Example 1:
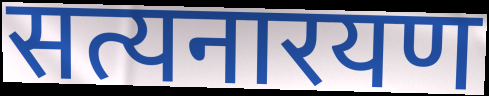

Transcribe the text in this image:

सत्यनारयण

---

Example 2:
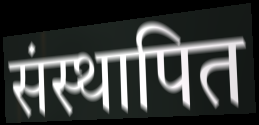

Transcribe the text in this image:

संस्थापित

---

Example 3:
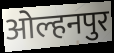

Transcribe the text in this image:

ओल्हनपुर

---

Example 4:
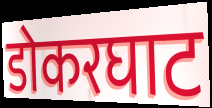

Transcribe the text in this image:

डोकरघाट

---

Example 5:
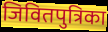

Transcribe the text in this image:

जिवितपुत्रिका